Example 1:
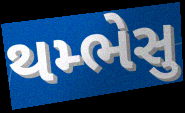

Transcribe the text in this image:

થમ્ભેસુ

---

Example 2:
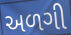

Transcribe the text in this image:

અળગી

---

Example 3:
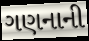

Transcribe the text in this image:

ગણનાની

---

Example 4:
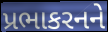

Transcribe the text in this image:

પ્રભાકરનને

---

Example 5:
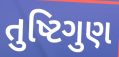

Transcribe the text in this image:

તુષ્ટિગુણ